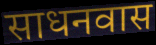
साधनवास